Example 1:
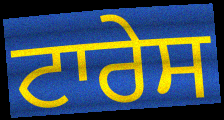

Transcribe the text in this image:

ਟਾਰੇਸ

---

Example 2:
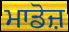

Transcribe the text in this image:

ਮਾਡੋਜ਼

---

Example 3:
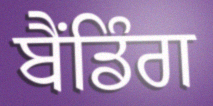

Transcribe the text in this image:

ਬੈਂਡਿੰਗ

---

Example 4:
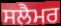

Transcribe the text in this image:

ਸਲੈਮਰ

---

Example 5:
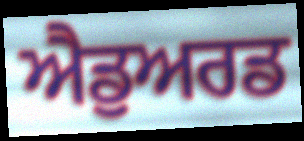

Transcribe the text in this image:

ਐਡੁਅਰਡ